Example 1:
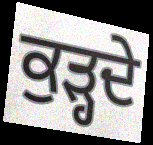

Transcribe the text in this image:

ਕੁੜ੍ਹਦੇ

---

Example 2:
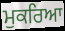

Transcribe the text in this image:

ਮੁਕਰਿਆ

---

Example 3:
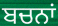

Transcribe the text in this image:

ਬਚਨਾਂ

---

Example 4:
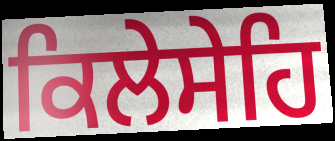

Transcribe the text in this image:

ਕਿਲੇਸੇਹਿ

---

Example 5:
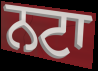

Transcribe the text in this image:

ਨਟਾ